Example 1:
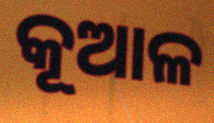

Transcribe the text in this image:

କୂଆଳ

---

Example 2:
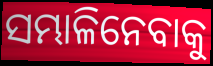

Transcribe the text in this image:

ସମ୍ଭାଳିନେବାକୁ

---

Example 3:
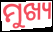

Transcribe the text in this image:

ମୁଖ୍ୟ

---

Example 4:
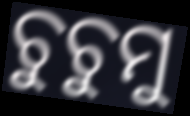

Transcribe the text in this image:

ଚୁଚୁମୁ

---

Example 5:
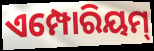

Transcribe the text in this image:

ଏମ୍ପୋରିୟମ୍